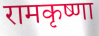
रामकृष्णा